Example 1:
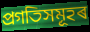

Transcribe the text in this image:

প্ৰগতিসমূহৰ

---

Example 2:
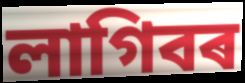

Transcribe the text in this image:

লাগিবৰ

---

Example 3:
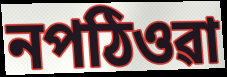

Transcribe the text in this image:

নপঠিওৱা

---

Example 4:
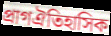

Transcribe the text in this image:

প্ৰাগঐতিহাসিক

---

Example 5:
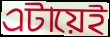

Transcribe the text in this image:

এটায়েই